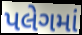
પલેગમાં